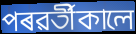
পৰৱৰ্তীকালে